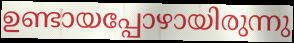
ഉണ്ടായപ്പോഴായിരുന്നു